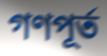
গণপূর্ত